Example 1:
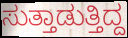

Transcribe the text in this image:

ಸುತ್ತಾಡುತ್ತಿದ್ದ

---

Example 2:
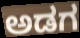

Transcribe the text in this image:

ಅಡಗ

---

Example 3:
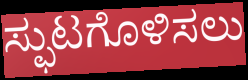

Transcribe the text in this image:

ಸ್ಫುಟಗೊಳಿಸಲು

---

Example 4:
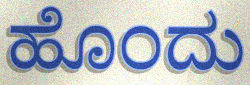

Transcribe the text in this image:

ಹೊಂದು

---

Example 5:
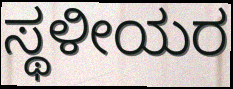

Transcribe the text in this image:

ಸ್ಥಳೀಯರ